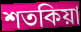
শতকিয়া